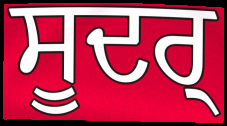
ਸੂਦਰ੍